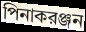
পিনাকরঞ্জন